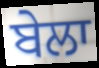
ਬੇਲਾ